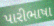
પારીભાષા